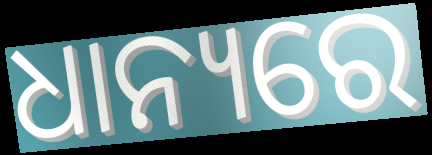
ଧାନ୍ୟରେ